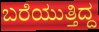
ಬರೆಯುತ್ತಿದ್ದ